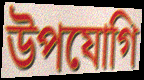
উপযোগি